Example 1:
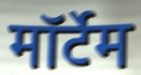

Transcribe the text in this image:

मॉर्टेम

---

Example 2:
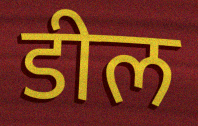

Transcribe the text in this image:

डील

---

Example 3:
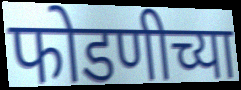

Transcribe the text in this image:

फोडणीच्या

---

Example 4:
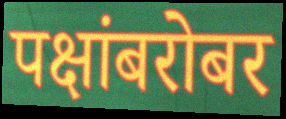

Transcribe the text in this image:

पक्षांबरोबर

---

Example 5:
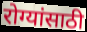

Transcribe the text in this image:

रोग्यांसाठी